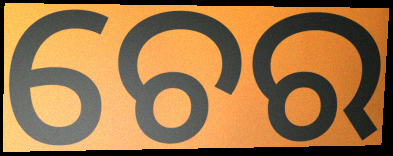
ଚେର